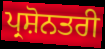
ਪ੍ਰਸ਼ੋਨਤਰੀ